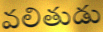
వలితుడు